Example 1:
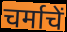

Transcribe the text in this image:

चर्माचें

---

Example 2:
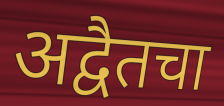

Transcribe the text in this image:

अद्वैतचा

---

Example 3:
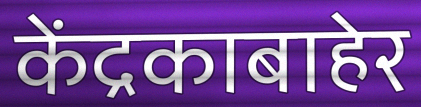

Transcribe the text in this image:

केंद्रकाबाहेर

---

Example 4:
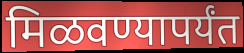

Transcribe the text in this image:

मिळवण्यापर्यंत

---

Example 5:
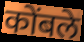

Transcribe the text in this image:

कोंबले